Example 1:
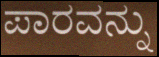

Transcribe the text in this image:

ಪಾರವನ್ನು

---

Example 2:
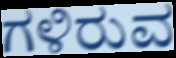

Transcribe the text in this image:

ಗಳಿರುವ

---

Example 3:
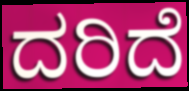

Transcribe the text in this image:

ದರಿದೆ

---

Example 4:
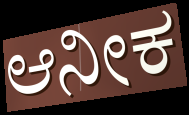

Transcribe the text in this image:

ಆನೀಕ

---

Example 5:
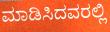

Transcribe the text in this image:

ಮಾಡಿಸಿದವರಲ್ಲಿ